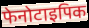
फेनोटाइपिक